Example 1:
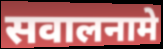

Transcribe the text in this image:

सवालनामे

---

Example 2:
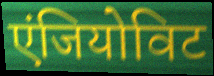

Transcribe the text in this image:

एंजियोविट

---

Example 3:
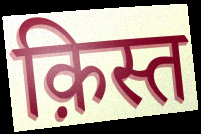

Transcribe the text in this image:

क़िस्त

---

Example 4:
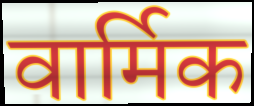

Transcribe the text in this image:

वार्मिक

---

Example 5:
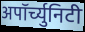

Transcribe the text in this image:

अपॉर्च्युनिटी